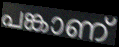
പങ്കാണ്